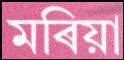
মৰিয়া